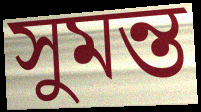
সুমন্ত